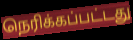
நெரிக்கப்பட்டது